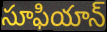
సూఫియాన్